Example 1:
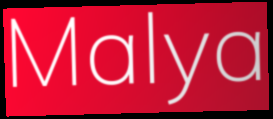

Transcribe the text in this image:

Malya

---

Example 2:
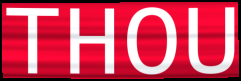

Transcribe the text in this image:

THOU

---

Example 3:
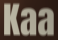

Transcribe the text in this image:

Kaa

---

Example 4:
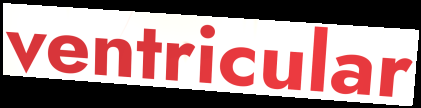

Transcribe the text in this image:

ventricular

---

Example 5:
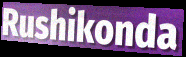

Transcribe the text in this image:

Rushikonda